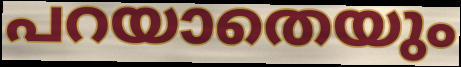
പറയാതെയും